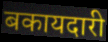
बकायदारी